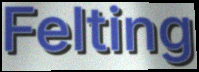
Felting